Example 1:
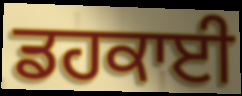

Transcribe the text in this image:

ਡਹਕਾਈ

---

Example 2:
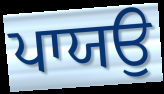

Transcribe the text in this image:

ਪਾਯਉ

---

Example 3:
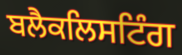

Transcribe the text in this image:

ਬਲੈਕਲਿਸਟਿੰਗ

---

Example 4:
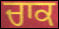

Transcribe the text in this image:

ਚਾਕ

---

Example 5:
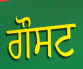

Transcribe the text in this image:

ਗੌਸਟ